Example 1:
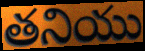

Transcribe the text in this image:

తనియు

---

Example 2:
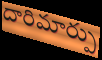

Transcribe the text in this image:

దారిమార్పు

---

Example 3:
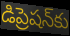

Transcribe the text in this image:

డిప్రెషన్‌కు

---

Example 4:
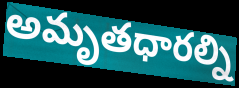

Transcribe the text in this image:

అమృతధారల్ని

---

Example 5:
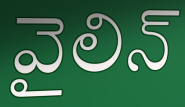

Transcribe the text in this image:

వైలిన్